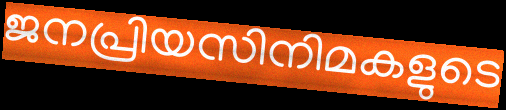
ജനപ്രിയസിനിമകളുടെ